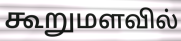
கூறுமளவில்